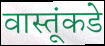
वास्तूंकडे